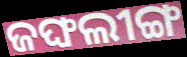
ଜଙ୍ଘଲୀଙ୍ଗ